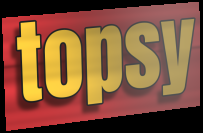
topsy